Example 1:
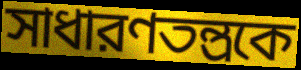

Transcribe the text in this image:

সাধারণতন্ত্রকে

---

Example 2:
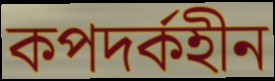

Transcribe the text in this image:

কপদর্কহীন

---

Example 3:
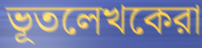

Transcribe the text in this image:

ভূতলেখকেরা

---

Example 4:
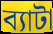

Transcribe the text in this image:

ব্যাটা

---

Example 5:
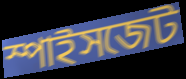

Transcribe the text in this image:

স্পাইসজেট